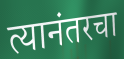
त्यानंतरचा